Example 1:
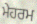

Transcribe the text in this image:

ਮੇਹਰਮ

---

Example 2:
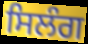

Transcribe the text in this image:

ਸਿਲੰਗ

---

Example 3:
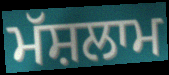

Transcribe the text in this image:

ਮੱਸ਼ਲਾਮ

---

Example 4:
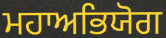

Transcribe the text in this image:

ਮਹਾਅਭਿਯੋਗ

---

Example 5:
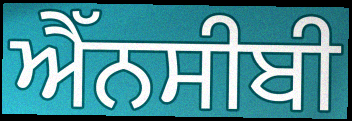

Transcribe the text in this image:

ਐੱਨਸੀਬੀ